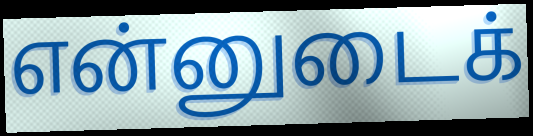
என்னுடைக்